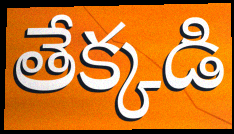
తేక్కడి